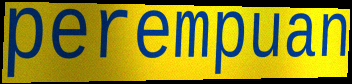
perempuan